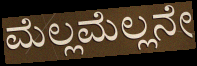
ಮೆಲ್ಲಮೆಲ್ಲನೇ